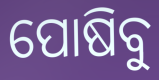
ପୋଷିବୁ